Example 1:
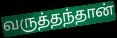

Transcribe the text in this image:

வருத்தந்தான்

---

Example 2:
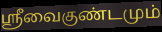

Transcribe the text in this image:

ஸ்ரீவைகுண்டமும்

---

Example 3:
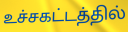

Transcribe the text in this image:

உச்சகட்டத்தில்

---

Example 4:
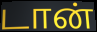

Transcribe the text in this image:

டான்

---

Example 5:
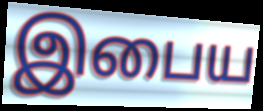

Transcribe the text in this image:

இபைய